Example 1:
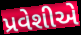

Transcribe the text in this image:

પ્રવેશીએ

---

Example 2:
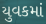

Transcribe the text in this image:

યુવકમાં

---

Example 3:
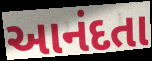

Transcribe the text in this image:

આનંદતા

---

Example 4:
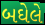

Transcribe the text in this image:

બઘેલે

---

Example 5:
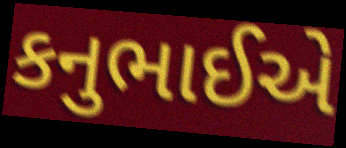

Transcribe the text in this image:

કનુભાઈએ